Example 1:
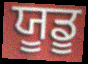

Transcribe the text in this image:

ਯੂਡੂ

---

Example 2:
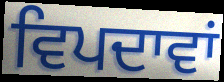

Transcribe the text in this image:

ਵਿਪਦਾਵਾਂ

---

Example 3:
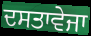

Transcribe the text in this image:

ਦਸਤਾਵੇਜਾ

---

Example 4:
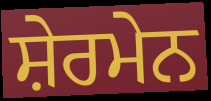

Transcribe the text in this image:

ਸ਼ੇਰਮੇਨ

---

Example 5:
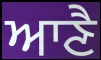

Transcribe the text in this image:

ਆਣੈ